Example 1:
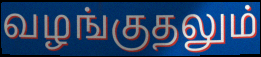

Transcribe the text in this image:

வழங்குதலும்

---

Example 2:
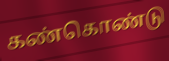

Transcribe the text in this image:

கண்கொண்டு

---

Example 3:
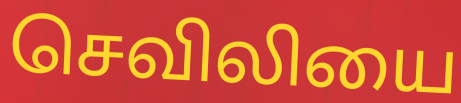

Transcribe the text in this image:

செவிலியை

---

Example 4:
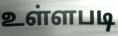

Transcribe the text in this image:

உள்ளபடி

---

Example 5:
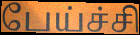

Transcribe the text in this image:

பேய்ச்சி